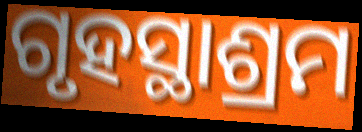
ଗୃହସ୍ଥାଶ୍ରମ